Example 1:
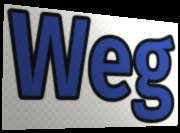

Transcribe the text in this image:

Weg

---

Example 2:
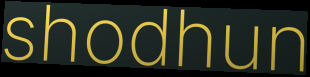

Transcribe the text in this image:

shodhun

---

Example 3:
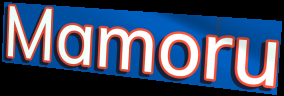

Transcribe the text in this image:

Mamoru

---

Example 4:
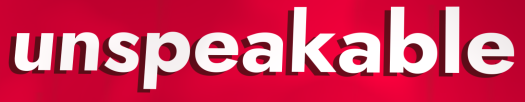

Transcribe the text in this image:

unspeakable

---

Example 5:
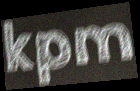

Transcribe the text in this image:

kpm